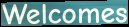
Welcomes